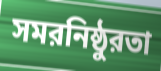
সমরনিষ্ঠুরতা